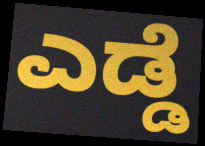
ಎಡ್ಡೆ